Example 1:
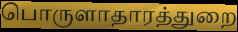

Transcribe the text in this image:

பொருளாதாரத்துறை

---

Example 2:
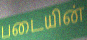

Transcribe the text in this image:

படையின்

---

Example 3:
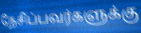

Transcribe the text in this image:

நேசிப்பவர்களுக்கு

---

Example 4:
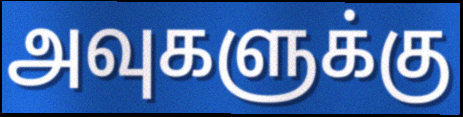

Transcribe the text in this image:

அவுகளுக்கு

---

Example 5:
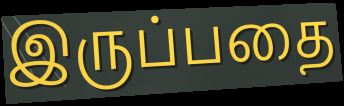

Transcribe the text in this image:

இருப்பதை